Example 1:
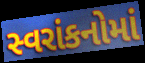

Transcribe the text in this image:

સ્વરાંકનોમાં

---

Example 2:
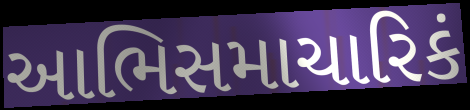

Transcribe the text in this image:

આભિસમાચારિકં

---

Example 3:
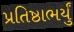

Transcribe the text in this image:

પ્રતિષ્ઠાભર્યું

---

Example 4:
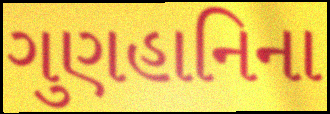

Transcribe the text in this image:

ગુણહાનિના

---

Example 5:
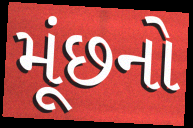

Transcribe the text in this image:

મૂંછનો